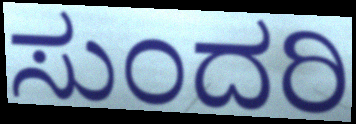
ಸುಂದರಿ